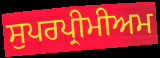
ਸੁਪਰਪ੍ਰੀਮੀਅਮ